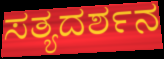
ಸತ್ಯದರ್ಶನ